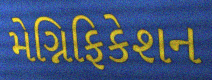
મેગ્નિફિકેશન